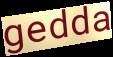
gedda